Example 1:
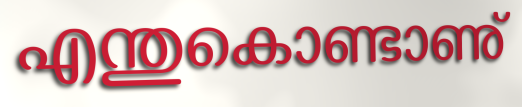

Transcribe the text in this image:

എന്തുകൊണ്ടാണു്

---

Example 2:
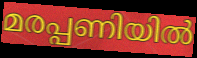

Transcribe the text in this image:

മരപ്പണിയിൽ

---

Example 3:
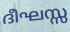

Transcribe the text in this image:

ദീഘസ്സ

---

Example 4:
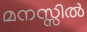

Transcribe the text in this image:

മനസ്സിൽ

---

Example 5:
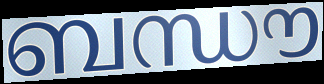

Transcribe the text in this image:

ബന്ധൗ